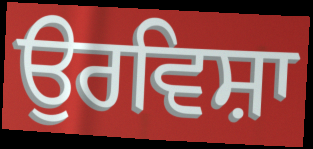
ਉਰਵਿਸ਼ਾ